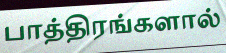
பாத்திரங்களால்